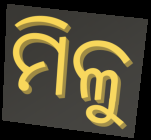
ମିଳୁ